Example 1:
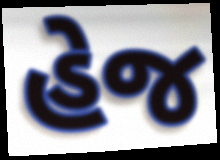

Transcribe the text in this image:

હેજ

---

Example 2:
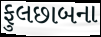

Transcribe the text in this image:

ફુલછાબના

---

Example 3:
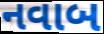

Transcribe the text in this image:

નવાબ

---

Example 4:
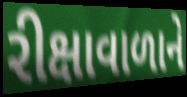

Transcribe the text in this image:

રીક્ષાવાળાને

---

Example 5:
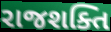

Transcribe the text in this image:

રાજશક્તિ